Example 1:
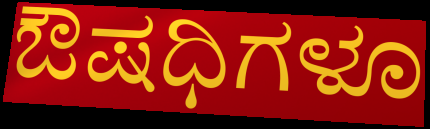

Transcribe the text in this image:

ಔಷಧಿಗಳೂ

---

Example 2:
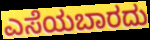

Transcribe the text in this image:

ಎಸೆಯಬಾರದು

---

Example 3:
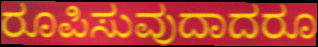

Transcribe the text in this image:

ರೂಪಿಸುವುದಾದರೂ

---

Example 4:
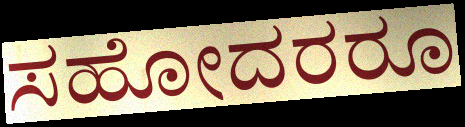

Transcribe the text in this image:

ಸಹೋದರರೂ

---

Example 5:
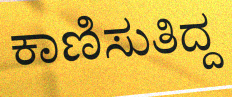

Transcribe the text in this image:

ಕಾಣಿಸುತಿದ್ದ